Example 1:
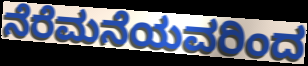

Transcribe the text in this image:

ನೆರೆಮನೆಯವರಿಂದ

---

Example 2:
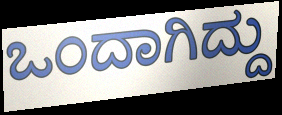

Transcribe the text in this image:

ಒಂದಾಗಿದ್ದು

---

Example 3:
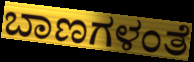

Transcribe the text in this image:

ಬಾಣಗಳಂತೆ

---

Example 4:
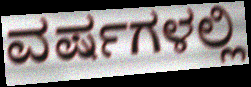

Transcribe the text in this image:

ವರ್ಷಗಳಲ್ಲಿ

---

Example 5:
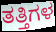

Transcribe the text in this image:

ತತ್ತಿಗಳ